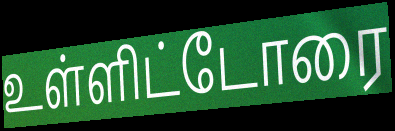
உள்ளிட்டோரை